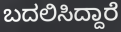
ಬದಲಿಸಿದ್ದಾರೆ